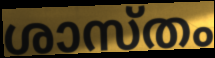
ശാസ്തം